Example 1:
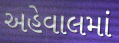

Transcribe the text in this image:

અહેવાલમાં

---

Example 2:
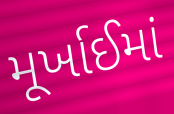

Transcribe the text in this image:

મૂર્ખાઈમાં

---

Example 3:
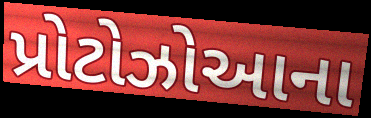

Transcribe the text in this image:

પ્રોટોઝોઆના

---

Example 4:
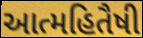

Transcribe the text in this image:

આત્મહિતૈષી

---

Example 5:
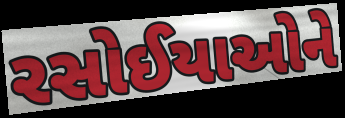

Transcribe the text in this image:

રસોઈયાઓને